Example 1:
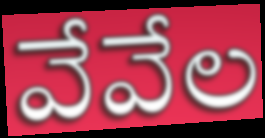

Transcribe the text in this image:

వేవేల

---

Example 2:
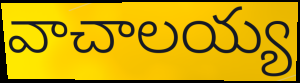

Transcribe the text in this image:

వాచాలయ్య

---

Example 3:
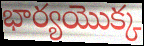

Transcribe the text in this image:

భార్యయొక్క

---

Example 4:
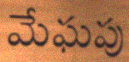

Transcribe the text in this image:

మేఘపు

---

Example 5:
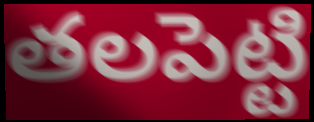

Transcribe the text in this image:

తలపెట్టి